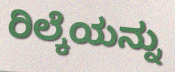
ರಿಲ್ಕೆಯನ್ನು